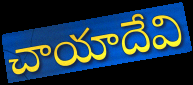
చాయాదేవి